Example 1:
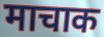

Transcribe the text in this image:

माचाक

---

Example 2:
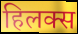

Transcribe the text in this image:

हिलक्स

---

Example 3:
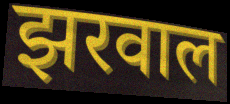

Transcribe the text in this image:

झरवाल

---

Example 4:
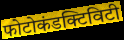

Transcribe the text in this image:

फोटोकंडक्टिविटी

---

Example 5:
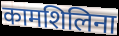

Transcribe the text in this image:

कामशिलिना